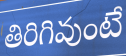
తిరిగివుంటే